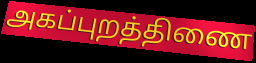
அகப்புறத்திணை